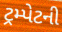
ટ્રમ્પેટની